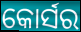
କୋର୍ସର